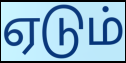
ஏடும்